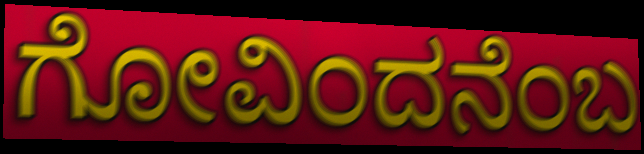
ಗೋವಿಂದನೆಂಬ